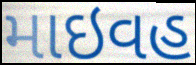
માઇવહ